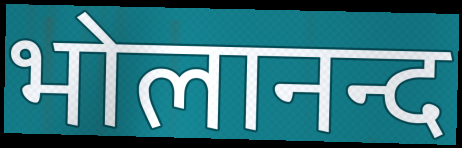
भोलानन्द